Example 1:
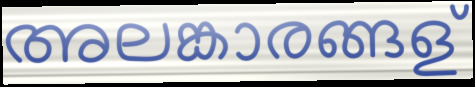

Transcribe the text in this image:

അലങ്കാരങ്ങള്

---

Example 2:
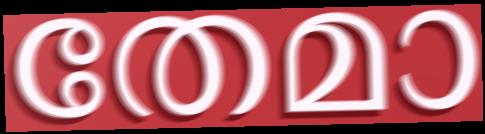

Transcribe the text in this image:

തേമാ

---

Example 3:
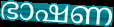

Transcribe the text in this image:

ഭാഷണ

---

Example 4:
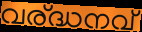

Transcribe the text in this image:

വര്ദ്ധനവ്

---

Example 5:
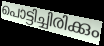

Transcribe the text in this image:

പൊട്ടിച്ചിരിക്കും